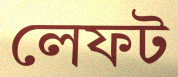
লেফট